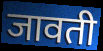
जावती